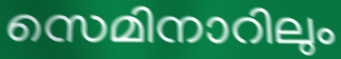
സെമിനാറിലും